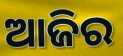
ଆଜିର